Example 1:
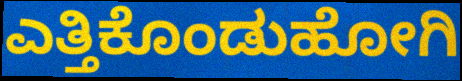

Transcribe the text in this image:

ಎತ್ತಿಕೊಂಡುಹೋಗಿ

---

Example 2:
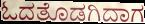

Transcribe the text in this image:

ಓದತೊಡಗಿದಾಗ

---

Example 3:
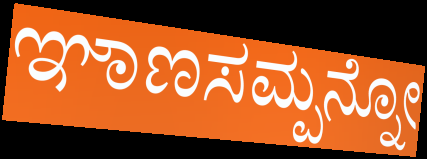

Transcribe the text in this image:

ಞಾಣಸಮ್ಪನ್ನೋ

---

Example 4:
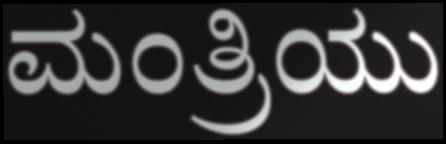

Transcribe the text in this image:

ಮಂತ್ರಿಯು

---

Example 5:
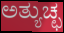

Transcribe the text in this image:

ಅತ್ಯುಚ್ಛ